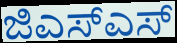
ಜಿಎಸ್ಎಸ್